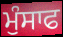
ਮੁੰਸਾਫ